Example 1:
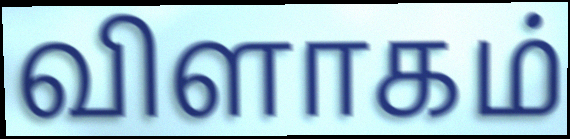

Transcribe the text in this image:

விளாகம்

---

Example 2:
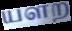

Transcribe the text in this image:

யளற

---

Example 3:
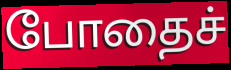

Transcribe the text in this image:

போதைச்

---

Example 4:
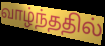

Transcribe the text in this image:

வாழ்ந்ததில்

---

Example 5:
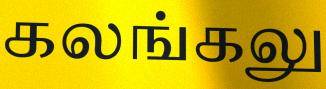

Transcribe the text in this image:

கலங்கலு